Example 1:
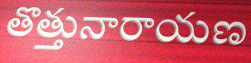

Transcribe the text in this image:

తొత్తునారాయణ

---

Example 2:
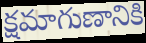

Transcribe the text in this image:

క్షమాగుణానికి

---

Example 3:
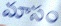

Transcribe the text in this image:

మాసం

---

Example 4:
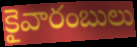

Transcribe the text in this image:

కైవారంబులు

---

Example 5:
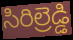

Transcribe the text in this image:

సిరిల్రెడ్డి